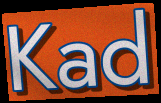
Kad